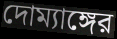
দোম্যাঙ্গের